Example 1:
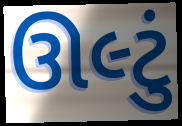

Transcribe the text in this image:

ઊલ્ટું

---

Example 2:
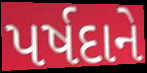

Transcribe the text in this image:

પર્ષદાને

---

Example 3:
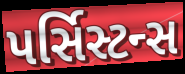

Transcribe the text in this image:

પર્સિસ્ટન્સ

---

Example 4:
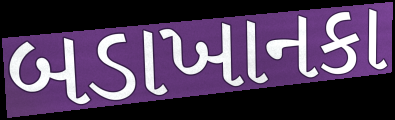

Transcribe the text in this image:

બડાખાનકા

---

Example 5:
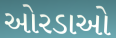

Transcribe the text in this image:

ઓરડાઓ